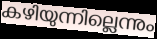
കഴിയുന്നില്ലെന്നും